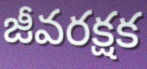
జీవరక్షక